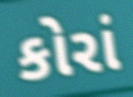
કોરાં